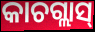
କାଚଗ୍ଲାସ୍